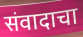
संवादाचा